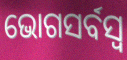
ଭୋଗସର୍ବସ୍ୱ